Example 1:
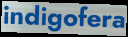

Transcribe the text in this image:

indigofera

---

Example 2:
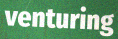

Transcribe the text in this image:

venturing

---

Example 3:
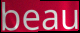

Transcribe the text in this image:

beau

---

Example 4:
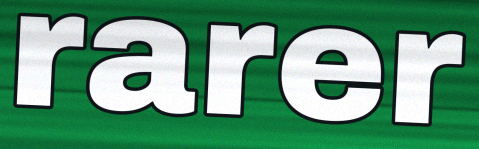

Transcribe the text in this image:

rarer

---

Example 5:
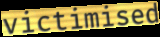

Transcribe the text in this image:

victimised